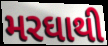
મરઘાથી